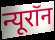
न्यूरॉन